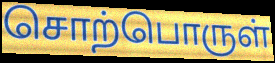
சொற்பொருள்